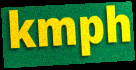
kmph